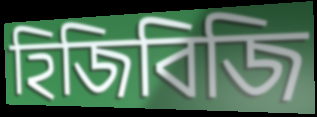
হিজিবিজি